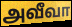
அவீவா